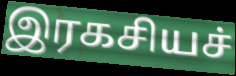
இரகசியச்